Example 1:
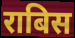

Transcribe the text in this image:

राबिस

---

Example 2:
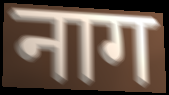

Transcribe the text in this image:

नाग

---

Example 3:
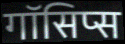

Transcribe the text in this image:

गॉसिप्स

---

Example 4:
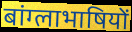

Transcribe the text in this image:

बांग्लाभाषियों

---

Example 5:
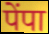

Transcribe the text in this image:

पेंपा